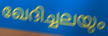
ഖേദിച്ചലയും